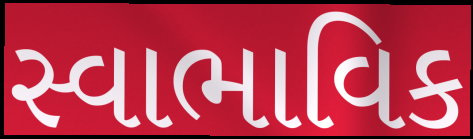
સ્વાભાવિક